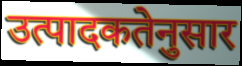
उत्पादकतेनुसार